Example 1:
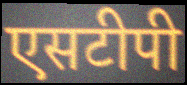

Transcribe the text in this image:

एसटीपी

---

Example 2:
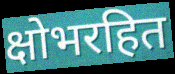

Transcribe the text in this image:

क्षोभरहित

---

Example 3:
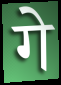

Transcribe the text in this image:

गे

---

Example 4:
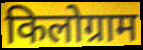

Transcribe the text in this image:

किलोग्राम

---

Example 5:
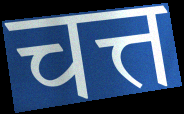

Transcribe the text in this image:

चत्त